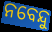
ନବେନ୍ଦୁ